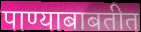
पाण्याबाबतीत